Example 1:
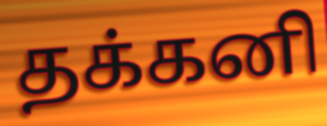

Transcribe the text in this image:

தக்கனி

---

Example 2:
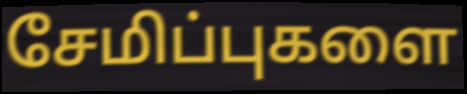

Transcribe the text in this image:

சேமிப்புகளை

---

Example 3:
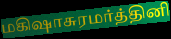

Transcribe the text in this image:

மகிஷாசுரமர்த்தினி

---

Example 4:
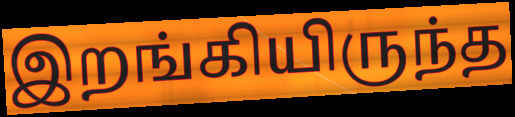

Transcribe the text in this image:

இறங்கியிருந்த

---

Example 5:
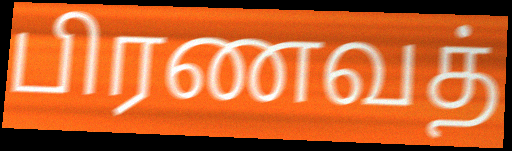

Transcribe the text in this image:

பிரணவத்